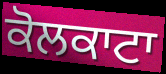
ਕੋਲਕਾਟਾ